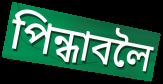
পিন্ধাবলৈ